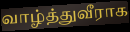
வாழ்த்துவீராக